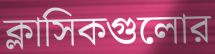
ক্লাসিকগুলোর